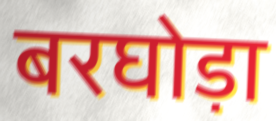
बरघोड़ा